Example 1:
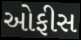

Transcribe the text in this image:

ઓફીસ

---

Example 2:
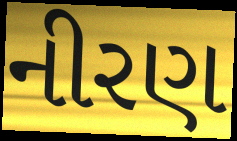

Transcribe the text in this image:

નીરણ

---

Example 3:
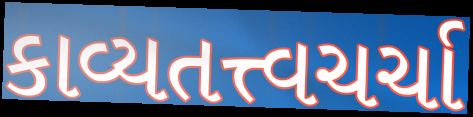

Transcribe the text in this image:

કાવ્યતત્ત્વચર્ચા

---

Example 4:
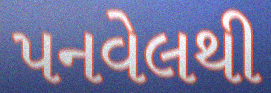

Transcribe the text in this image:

પનવેલથી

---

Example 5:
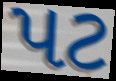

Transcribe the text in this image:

પટ